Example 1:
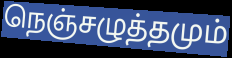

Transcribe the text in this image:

நெஞ்சழுத்தமும்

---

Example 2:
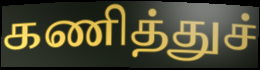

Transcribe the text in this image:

கணித்துச்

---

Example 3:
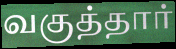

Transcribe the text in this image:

வகுத்தார்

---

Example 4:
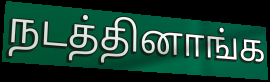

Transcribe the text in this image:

நடத்தினாங்க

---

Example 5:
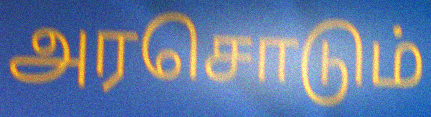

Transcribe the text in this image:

அரசொடும்